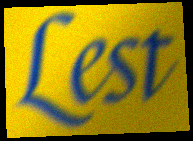
Lest